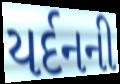
યર્દનની